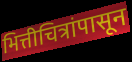
भित्तीचित्रांपासून